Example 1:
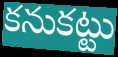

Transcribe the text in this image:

కనుకట్టు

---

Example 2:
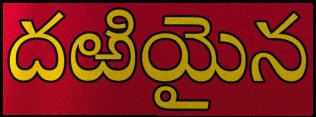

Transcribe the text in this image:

దఱియైన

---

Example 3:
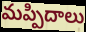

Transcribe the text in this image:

మప్పిదాలు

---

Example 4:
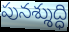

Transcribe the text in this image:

పునశ్శుద్ధి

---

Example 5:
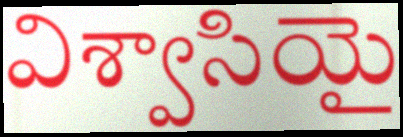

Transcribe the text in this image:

విశ్వాసియై